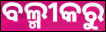
ବଲ୍ମୀକରୁ